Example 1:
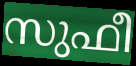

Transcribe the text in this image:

സുഫീ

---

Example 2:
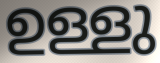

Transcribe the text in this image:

ഉള്ളു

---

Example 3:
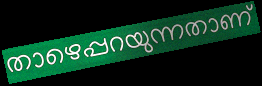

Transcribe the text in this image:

താഴെപ്പറയുന്നതാണ്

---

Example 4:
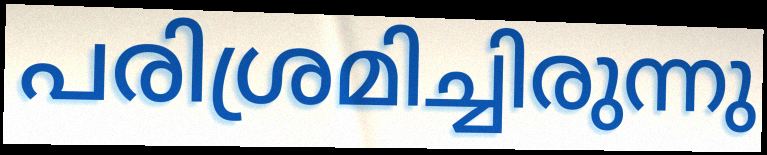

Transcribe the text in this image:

പരിശ്രമിച്ചിരുന്നു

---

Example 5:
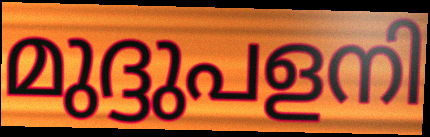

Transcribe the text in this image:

മുദ്ദുപളനി